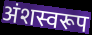
अंशस्वरूप